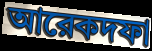
আরেকদফা